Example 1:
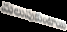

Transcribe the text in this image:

మలుపుకుంటాయి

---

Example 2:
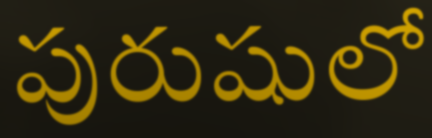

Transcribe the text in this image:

పురుషులో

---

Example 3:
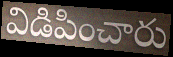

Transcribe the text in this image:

విడిపించారు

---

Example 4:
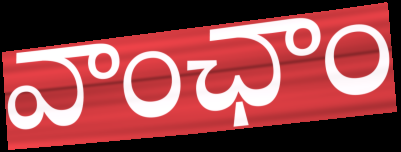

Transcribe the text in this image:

వాంఛాం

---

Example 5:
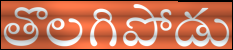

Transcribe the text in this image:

తొలగిపోడు